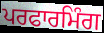
ਪਰਫਾਰਮਿੰਗ